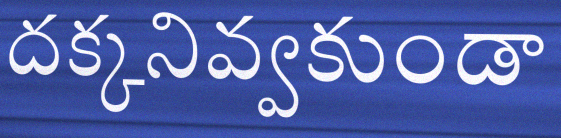
దక్కనివ్వకుండా